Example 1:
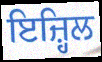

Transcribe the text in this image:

ਇਜ਼੍ਹਿਲ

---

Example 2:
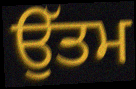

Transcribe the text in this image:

ਉੱਤਮ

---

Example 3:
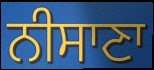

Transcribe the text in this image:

ਨੀਸਾਣਾ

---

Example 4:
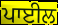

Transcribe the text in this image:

ਪਾਈਲ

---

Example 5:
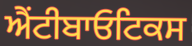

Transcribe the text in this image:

ਐਂਟੀਬਾਓਟਿਕਸ